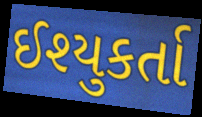
ઈશ્યુકર્તા